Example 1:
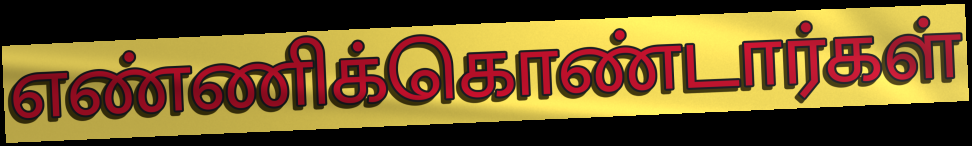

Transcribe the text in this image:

எண்ணிக்கொண்டார்கள்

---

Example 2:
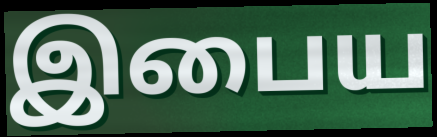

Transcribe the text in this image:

இபைய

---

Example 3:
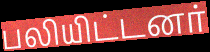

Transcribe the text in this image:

பலியிட்டனர்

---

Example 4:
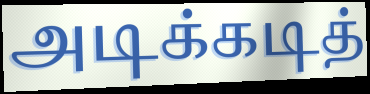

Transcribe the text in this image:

அடிக்கடித்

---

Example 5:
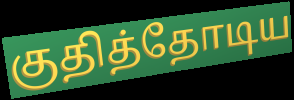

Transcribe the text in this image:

குதித்தோடிய